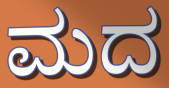
ಮದ